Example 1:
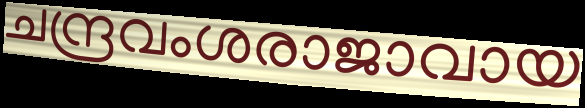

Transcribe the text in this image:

ചന്ദ്രവംശരാജാവായ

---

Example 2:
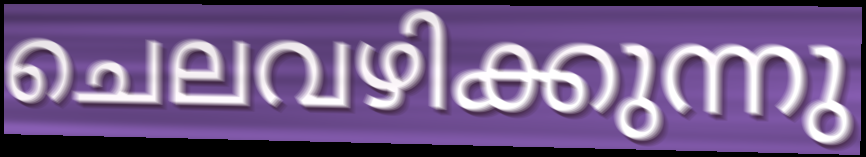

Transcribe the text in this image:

ചെലവഴിക്കുന്നു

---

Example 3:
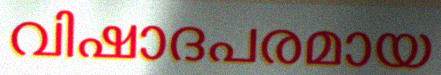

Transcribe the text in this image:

വിഷാദപരമായ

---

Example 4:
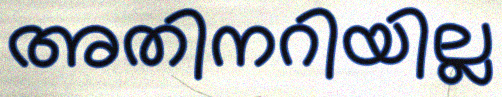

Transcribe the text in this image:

അതിനറിയില്ല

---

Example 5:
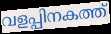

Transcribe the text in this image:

വളപ്പിനകത്ത്